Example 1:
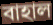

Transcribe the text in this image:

বাহাল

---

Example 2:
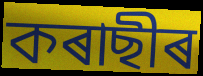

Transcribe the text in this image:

কৰাছীৰ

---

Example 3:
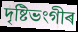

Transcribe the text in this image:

দৃষ্টিভংগীৰ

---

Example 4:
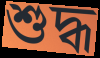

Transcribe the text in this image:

শুদ্ধ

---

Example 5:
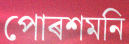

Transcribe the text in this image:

পোৰশমনি